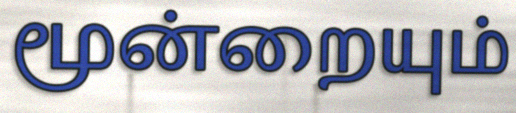
மூன்றையும்